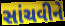
સાંચવીને